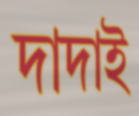
দাদাই